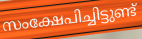
സംക്ഷേപിച്ചിട്ടുണ്ട്